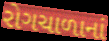
રોગચાળાનાં